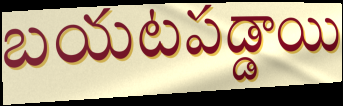
బయటపడ్డాయి